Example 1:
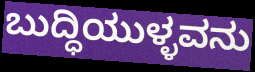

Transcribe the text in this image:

ಬುದ್ಧಿಯುಳ್ಳವನು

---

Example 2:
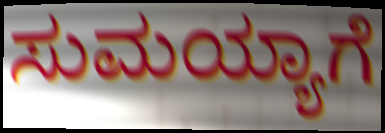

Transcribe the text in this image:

ಸುಮಯ್ಯಾಗೆ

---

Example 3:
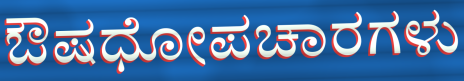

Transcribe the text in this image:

ಔಷಧೋಪಚಾರಗಳು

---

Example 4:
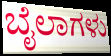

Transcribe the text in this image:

ಬೈಲಾಗಳು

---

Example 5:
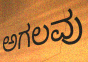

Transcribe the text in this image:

ಅಗಲವು